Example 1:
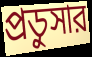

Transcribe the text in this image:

প্রডুসার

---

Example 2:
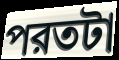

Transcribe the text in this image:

পরতটা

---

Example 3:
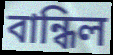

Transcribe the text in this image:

বান্ধিল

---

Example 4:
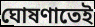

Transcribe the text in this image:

ঘোষণাতেই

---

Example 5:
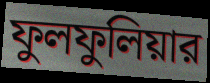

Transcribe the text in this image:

ফুলফুলিয়ার